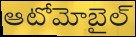
ఆటోమోబైల్